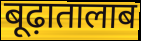
बूढ़ातालाब